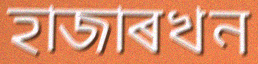
হাজাৰখন